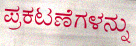
ಪ್ರಕಟಣೆಗಳನ್ನು